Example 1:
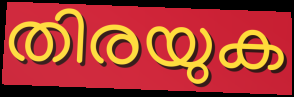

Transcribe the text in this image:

തിരയുക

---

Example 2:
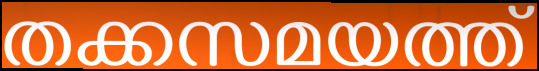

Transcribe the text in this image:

തക്കസമയത്ത്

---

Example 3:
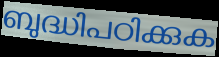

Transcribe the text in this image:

ബുദ്ധിപഠിക്കുക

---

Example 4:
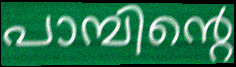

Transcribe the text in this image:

പാമ്പിന്റെ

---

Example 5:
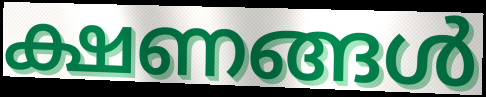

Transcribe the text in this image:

ക്ഷണങ്ങൾ